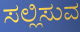
ಸಲ್ಲಿಸುವ